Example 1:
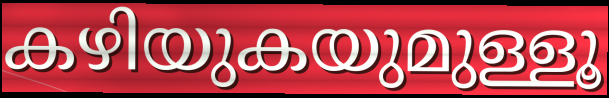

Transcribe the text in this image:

കഴിയുകയുമുള്ളൂ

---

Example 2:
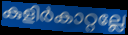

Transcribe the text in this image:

കുളിർകാറ്റല്ലേ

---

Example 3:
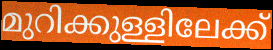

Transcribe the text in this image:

മുറിക്കുള്ളിലേക്ക്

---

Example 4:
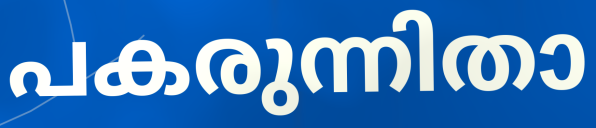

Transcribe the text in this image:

പകരുന്നിതാ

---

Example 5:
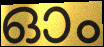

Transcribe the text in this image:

ഓം